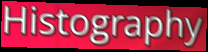
Histography